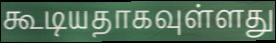
கூடியதாகவுள்ளது